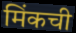
मिंकची